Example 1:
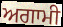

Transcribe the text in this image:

ਅਗਾਮੀ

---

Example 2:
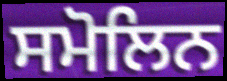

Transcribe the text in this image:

ਸਮੋਲਿਨ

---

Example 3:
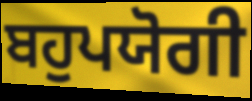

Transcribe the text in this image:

ਬਹੁਪਯੋਗੀ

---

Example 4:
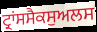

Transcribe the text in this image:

ਟ੍ਰਾਂਸਸੈਕਸੁਅਲਸ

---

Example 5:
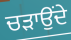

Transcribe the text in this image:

ਚੜਾਉਂਦੇ